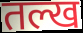
तल्‍ख